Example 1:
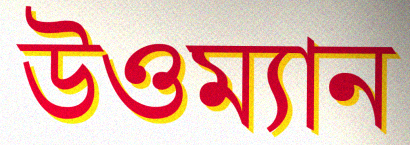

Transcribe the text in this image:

উওম্যান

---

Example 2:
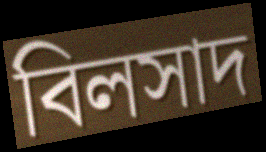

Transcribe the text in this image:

বিলসাদ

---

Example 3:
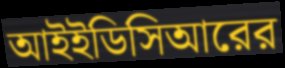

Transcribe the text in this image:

আইইডিসিআরের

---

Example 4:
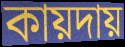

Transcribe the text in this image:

কায়দায়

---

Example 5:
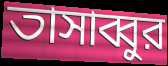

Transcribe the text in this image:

তাসাব্বুর